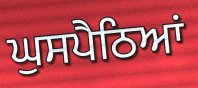
ਘੁਸਪੈਠਿਆਂ